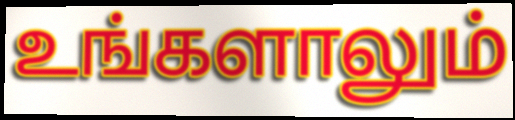
உங்களாலும்